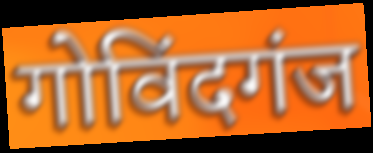
गोविंदगंज